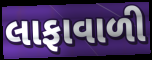
લાફાવાળી